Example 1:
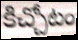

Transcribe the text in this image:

కిచ్చోటం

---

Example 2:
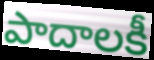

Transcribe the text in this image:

పాదాలకీ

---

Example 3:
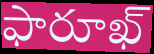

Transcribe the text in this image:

ఫారూఖ్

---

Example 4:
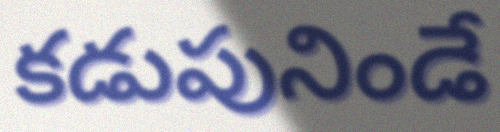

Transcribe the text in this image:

కడుపునిండే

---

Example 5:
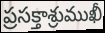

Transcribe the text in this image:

ప్రసక్తాశ్రుముఖీ